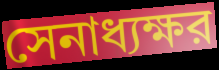
সেনাধ্যক্ষর